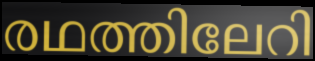
രഥത്തിലേറി